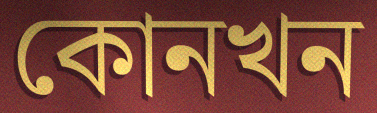
কোনখন